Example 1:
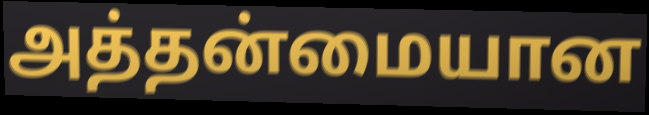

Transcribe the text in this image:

அத்தன்மையான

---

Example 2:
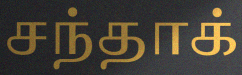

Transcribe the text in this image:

சந்தாக்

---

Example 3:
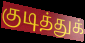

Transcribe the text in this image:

குடித்துக்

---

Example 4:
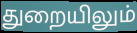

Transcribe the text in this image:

துறையிலும்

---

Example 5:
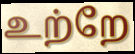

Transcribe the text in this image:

உற்றே